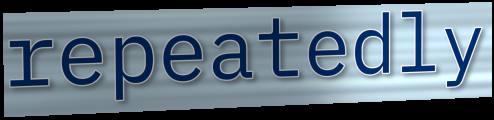
repeatedly